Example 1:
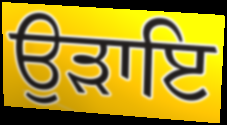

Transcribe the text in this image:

ਉੜਾਇ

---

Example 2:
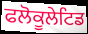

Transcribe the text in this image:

ਫਲੋਕੂਲੇਟਿਡ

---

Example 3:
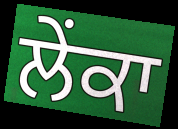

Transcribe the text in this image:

ਲੇਂਕਾ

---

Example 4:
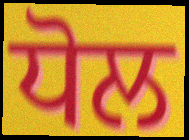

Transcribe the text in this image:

ਧੋਲ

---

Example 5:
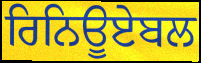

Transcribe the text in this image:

ਰਿਨਿਊਏਬਲ